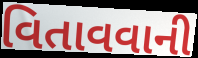
વિતાવવાની